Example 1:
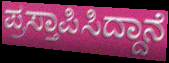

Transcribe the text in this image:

ಪ್ರಸ್ತಾಪಿಸಿದ್ದಾನೆ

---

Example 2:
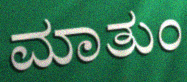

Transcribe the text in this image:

ಮಾತುಂ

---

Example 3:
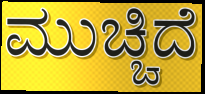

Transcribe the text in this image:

ಮುಚ್ಚಿದೆ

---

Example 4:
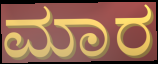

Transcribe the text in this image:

ಮಾರ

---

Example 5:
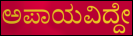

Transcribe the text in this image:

ಅಪಾಯವಿದ್ದೇ